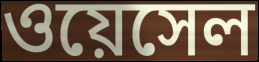
ওয়েসেল